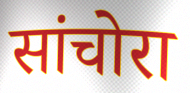
सांचोरा